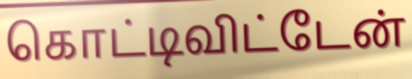
கொட்டிவிட்டேன்